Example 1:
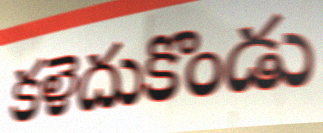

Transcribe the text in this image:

కళెదుకొండు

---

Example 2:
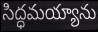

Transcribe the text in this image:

సిద్ధమయ్యాను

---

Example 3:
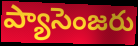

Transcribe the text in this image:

ప్యాసెంజరు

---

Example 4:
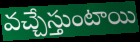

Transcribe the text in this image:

వచ్చేస్తుంటాయి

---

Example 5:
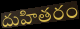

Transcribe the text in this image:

దుహితరం